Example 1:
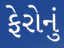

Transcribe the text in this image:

ફેરોનું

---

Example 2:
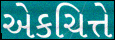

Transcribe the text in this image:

એકચિત્તે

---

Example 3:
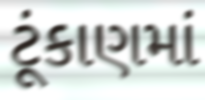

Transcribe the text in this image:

ટૂંકાણમાં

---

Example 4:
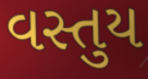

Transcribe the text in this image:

વસ્તુય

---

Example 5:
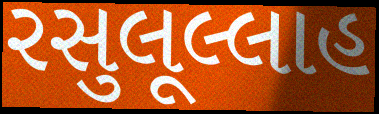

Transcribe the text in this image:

રસુલૂલ્લાહ